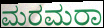
ಮರಮರಾ